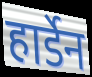
हार्डेन